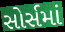
સોર્સમાં